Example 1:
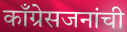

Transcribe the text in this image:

काँग्रेसजनांची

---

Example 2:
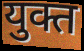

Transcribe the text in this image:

युक्त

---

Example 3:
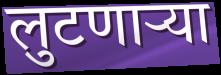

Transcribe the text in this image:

लुटणाऱ्या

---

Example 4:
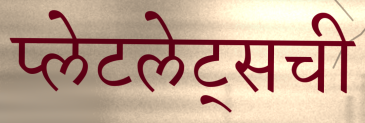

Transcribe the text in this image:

प्लेटलेट्‌सची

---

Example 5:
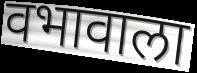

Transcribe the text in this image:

वभावाला